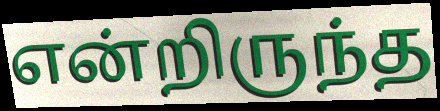
என்றிருந்த